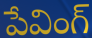
పేవింగ్